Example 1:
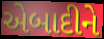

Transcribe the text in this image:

એબાદીને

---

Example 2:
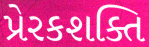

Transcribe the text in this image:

પ્રેરકશક્તિ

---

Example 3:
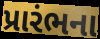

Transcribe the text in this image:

પ્રારંભના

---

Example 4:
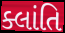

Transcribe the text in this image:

ક્લાંતિ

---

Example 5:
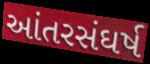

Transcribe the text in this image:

આંતરસંઘર્ષ